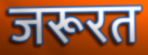
जरूरत